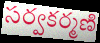
సర్వకర్మణి